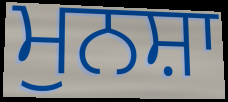
ਮੁਨਸ਼ਾ